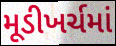
મૂડીખર્ચમાં